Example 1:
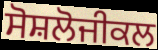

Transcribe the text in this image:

ਸੋਸ਼ਲੋਜੀਕਲ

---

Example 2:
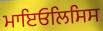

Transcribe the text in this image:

ਮਾਇਓਲਿਸਿਸ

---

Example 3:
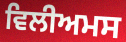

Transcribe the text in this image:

ਵਿਲੀਅਮਸ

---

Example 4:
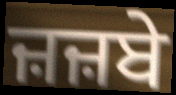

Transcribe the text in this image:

ਜ਼ਜ਼ਬੇ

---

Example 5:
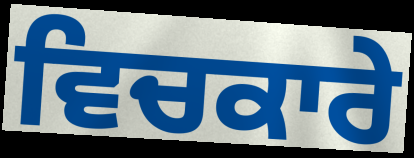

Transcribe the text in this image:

ਵਿਚਕਾਰੇ